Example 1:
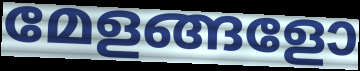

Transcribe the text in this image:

മേളങ്ങളോ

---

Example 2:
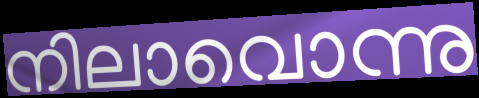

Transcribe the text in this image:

നിലാവൊന്നു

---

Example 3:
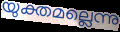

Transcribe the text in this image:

യുക്തമല്ലെന്നു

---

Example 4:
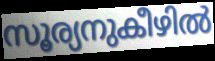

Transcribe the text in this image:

സൂര്യനുകീഴിൽ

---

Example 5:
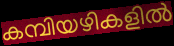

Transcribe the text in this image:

കമ്പിയഴികളിൽ